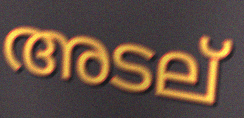
അടല്